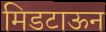
मिडटाऊन